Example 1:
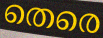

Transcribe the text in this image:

തെരെ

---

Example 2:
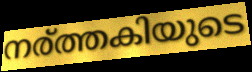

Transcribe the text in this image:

നര്ത്തകിയുടെ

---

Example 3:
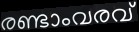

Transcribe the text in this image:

രണ്ടാംവരവ്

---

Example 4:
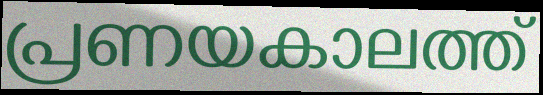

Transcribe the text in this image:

പ്രണയകാലത്ത്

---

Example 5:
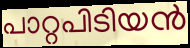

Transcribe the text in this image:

പാറ്റപിടിയൻ